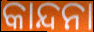
କାନ୍ଦନା